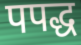
पपद्ध